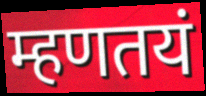
म्हणतयं